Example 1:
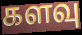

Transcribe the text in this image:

களவு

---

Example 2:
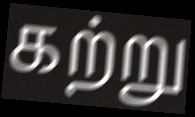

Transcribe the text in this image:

கற்று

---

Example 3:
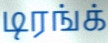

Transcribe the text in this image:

டிரங்க்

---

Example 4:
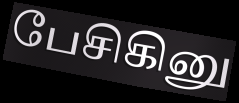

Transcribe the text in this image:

பேசிகினு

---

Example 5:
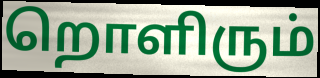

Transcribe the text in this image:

றொளிரும்